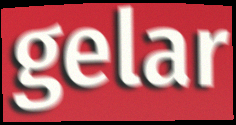
gelar